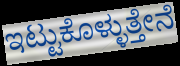
ಇಟ್ಟುಕೊಳ್ಳುತ್ತೇನೆ